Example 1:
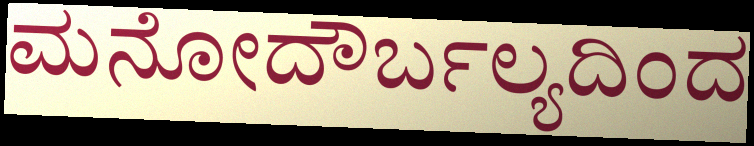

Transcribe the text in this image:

ಮನೋದೌರ್ಬಲ್ಯದಿಂದ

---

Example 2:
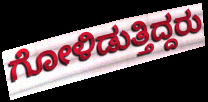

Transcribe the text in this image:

ಗೋಳಿಡುತ್ತಿದ್ದರು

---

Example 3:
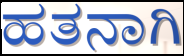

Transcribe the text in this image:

ಹತನಾಗಿ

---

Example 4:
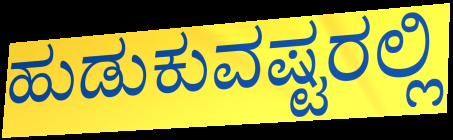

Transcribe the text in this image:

ಹುಡುಕುವಷ್ಟರಲ್ಲಿ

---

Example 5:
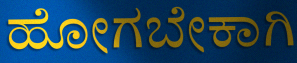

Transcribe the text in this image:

ಹೋಗಬೇಕಾಗಿ